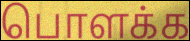
பொளக்க